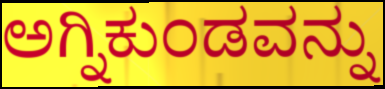
ಅಗ್ನಿಕುಂಡವನ್ನು